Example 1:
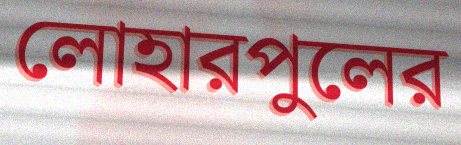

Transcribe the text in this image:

লোহারপুলের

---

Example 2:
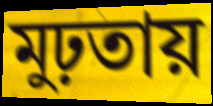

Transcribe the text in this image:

মুঢ়তায়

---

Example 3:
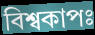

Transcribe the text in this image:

বিশ্বকাপঃ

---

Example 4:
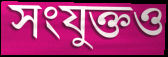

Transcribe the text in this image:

সংযুক্তও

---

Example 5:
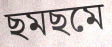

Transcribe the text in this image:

ছমছমে